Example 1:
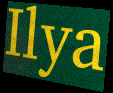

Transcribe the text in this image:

Ilya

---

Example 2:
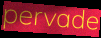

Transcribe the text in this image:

pervade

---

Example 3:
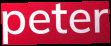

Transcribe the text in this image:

peter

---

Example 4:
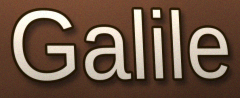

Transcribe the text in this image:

Galile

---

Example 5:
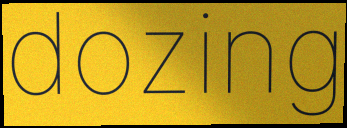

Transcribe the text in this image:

dozing